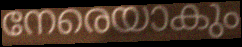
നേരെയാകും